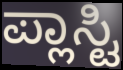
ಪ್ಲಾಸ್ಟಿ